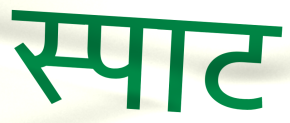
स्पाट